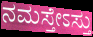
ನಮಸ್ತೇಽಸ್ತು